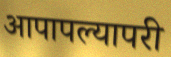
आपापल्यापरी